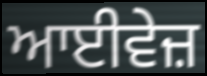
ਆਈਵੇਜ਼